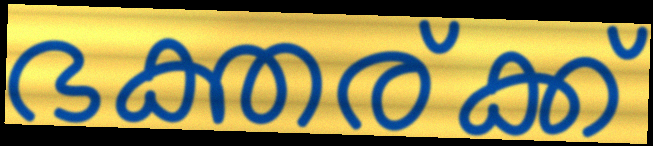
ഭക്തര്ക്ക്